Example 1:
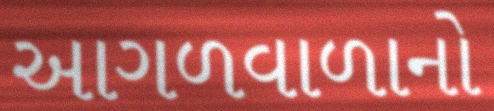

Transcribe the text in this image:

આગળવાળાનો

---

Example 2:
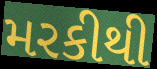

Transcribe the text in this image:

મરકીથી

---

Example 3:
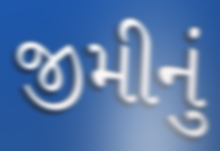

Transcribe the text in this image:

જીમીનું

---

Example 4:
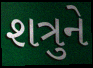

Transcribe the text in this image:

શત્રુને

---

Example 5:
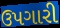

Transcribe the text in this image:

ઉપગારી